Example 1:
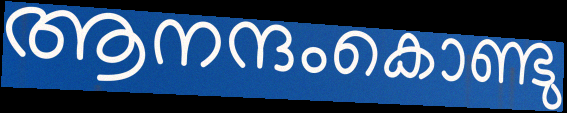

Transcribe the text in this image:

ആനന്ദംകൊണ്ടു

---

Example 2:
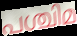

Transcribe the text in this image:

പശ്ചിമ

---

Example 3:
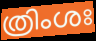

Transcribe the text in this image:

ത്രിംശഃ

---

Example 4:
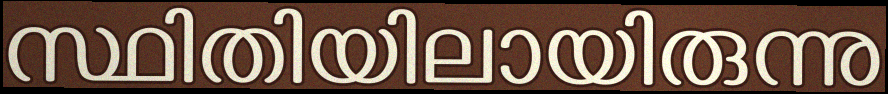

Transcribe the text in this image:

സ്ഥിതിയിലായിരുന്നു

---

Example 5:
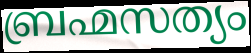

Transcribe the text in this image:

ബ്രഹ്മസത്യം